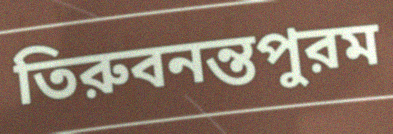
তিরুবনন্তপুরম